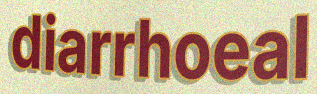
diarrhoeal